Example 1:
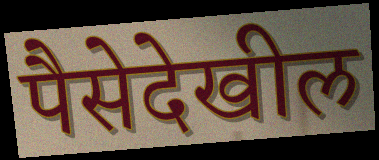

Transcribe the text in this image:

पैसेदेखील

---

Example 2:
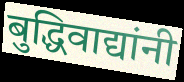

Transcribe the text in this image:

बुद्धिवाद्यांनी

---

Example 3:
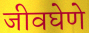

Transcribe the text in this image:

जीवघेणे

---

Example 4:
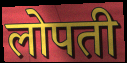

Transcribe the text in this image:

लोपती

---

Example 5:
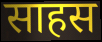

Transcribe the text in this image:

साहस